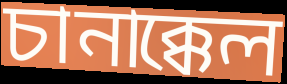
চানাক্কেল